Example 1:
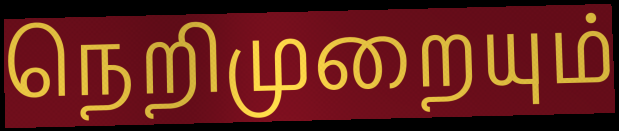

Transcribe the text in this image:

நெறிமுறையும்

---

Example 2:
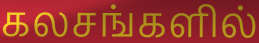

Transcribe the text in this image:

கலசங்களில்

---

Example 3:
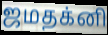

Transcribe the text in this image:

ஜமதக்னி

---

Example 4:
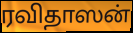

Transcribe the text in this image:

ரவிதாஸன்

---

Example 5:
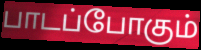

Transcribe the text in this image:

பாடப்போகும்